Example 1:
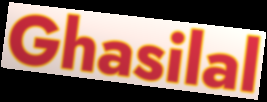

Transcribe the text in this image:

Ghasilal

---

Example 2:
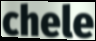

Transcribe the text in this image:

chele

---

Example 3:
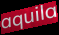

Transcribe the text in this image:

aquila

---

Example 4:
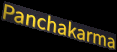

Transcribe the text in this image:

Panchakarma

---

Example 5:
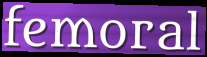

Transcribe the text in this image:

femoral